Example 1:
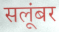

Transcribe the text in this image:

सलूंबर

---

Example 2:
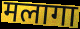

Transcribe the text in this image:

मलागा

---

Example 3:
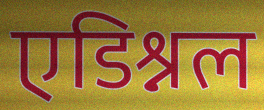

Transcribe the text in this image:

एडिश्नल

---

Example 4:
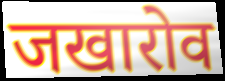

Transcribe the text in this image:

जखारोव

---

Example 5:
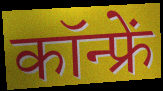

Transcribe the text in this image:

कॉन्फ्रें